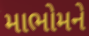
માભોમને